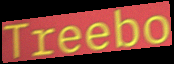
Treebo